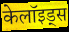
केलॉइड्स